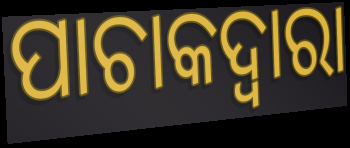
ପାଚାକଦ୍ଵାରା